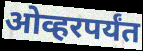
ओव्हरपर्यंत